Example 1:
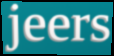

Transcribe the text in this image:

jeers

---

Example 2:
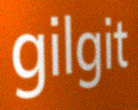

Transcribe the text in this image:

gilgit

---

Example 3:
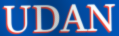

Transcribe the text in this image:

UDAN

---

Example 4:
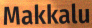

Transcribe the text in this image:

Makkalu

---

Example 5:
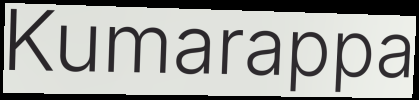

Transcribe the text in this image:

Kumarappa